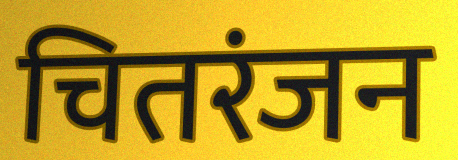
चितरंजन